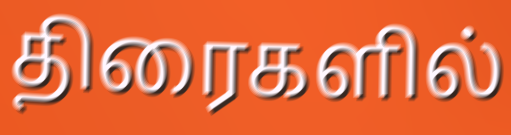
திரைகளில்